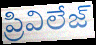
ప్రివిలేజ్